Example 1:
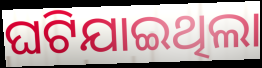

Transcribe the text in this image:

ଘଟିଯାଇଥିଲା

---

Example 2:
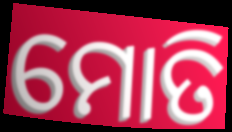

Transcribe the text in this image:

ମୋତି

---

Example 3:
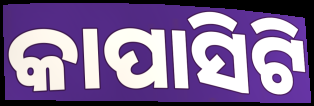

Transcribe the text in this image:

କାପାସିଟି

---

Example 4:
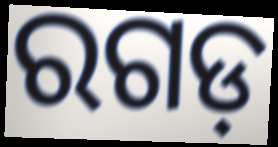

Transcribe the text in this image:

ରଗଡ଼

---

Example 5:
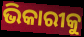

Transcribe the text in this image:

ଭିକାରୀକୁ